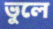
ভুলে